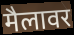
मैलावर